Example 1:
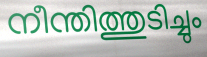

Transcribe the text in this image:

നീന്തിത്തുടിച്ചും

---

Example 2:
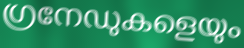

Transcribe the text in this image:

ഗ്രനേഡുകളെയും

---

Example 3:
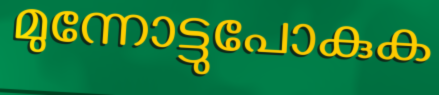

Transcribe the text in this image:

മുന്നോട്ടുപോകുക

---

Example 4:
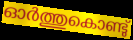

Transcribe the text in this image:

ഓർത്തുകൊണ്ടു്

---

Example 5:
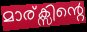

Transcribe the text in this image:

മാര്ക്സിന്റെ